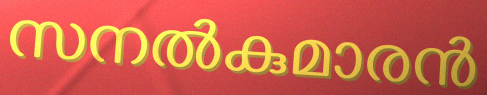
സനൽകുമാരൻ